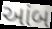
આંબ